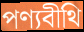
পণ্যবীথি